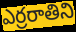
ఎర్రరాతిని